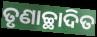
ତୃଣାଚ୍ଛାଦିତ